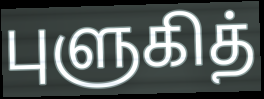
புளுகித்